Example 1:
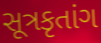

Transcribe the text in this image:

સૂત્રકૃતાંગ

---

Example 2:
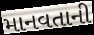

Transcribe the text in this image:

માનવતાની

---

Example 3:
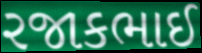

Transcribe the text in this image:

રજાકભાઈ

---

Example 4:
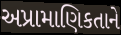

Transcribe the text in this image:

અપ્રામાણિકતાને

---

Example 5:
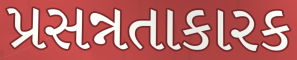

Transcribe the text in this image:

પ્રસન્નતાકારક